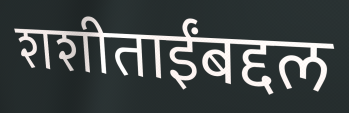
शशीताईंबद्दल